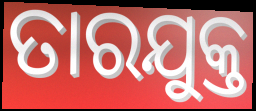
ତାରଯୁକ୍ତ